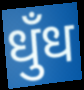
धुँध